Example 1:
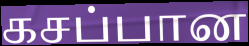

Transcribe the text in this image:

கசப்பான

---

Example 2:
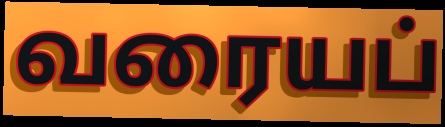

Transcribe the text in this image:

வரையப்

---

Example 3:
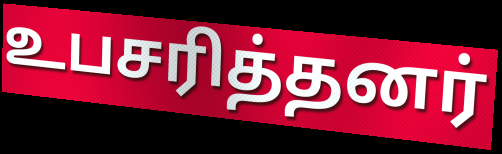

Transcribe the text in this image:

உபசரித்தனர்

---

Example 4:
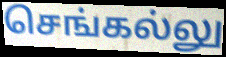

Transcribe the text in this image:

செங்கல்லு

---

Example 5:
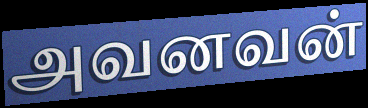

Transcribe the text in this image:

அவனவன்